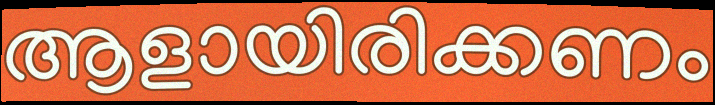
ആളായിരിക്കണം